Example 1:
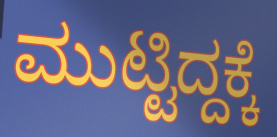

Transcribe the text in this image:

ಮುಟ್ಟಿದ್ದಕ್ಕೆ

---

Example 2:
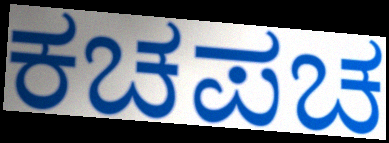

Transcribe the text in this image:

ಕಚಪಚ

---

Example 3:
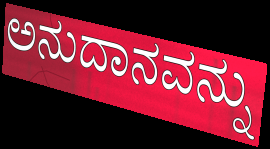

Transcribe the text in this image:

ಅನುದಾನವನ್ನು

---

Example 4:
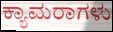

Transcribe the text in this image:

ಕ್ಯಾಮರಾಗಳು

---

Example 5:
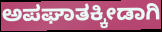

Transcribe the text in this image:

ಅಪಘಾತಕ್ಕೀಡಾಗಿ